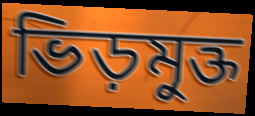
ভিড়মুক্ত